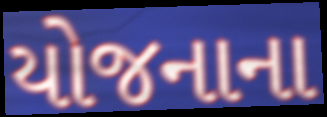
યોજનાના